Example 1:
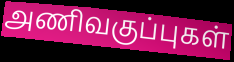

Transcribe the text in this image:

அணிவகுப்புகள்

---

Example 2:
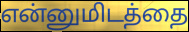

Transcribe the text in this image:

என்னுமிடத்தை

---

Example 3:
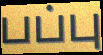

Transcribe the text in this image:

பப்பு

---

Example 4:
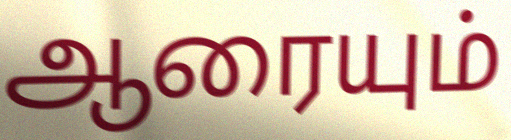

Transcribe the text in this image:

ஆரையும்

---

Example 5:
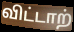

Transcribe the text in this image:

விட்டாற்